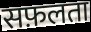
सफ़लता